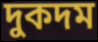
দুকদম